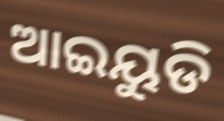
ଆଇୟୁଡି